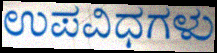
ಉಪವಿಧಗಳು